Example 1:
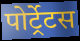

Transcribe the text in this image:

पोर्ट्रेटस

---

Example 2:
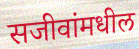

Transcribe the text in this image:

सजीवांमधील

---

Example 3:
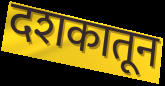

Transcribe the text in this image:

दशकातून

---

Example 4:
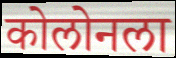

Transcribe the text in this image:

कोलोनला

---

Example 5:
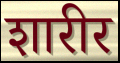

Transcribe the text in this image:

शारीर